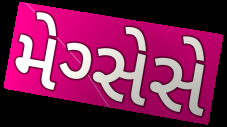
મેગ્સેસે